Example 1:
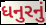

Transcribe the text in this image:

ધનુરનું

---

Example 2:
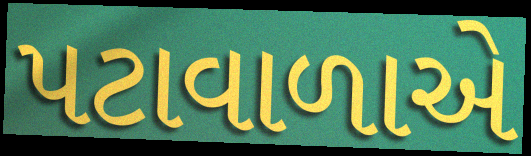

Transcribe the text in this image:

પટાવાળાએ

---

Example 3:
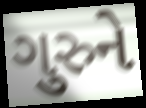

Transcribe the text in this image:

ગુરુને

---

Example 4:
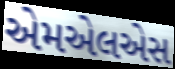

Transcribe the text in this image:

એમએલએસ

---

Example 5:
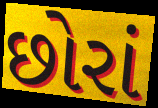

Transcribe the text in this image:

છોરાં